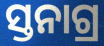
ସ୍ତନାଗ୍ର